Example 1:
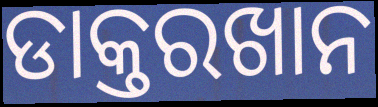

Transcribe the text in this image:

ଡାକ୍ତରଖାନ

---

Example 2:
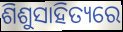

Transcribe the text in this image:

ଶିଶୁସାହିତ୍ୟରେ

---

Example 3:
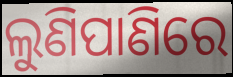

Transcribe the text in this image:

ଲୁଣିପାଣିରେ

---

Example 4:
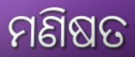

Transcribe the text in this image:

ମଣିଷତ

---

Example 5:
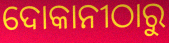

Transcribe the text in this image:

ଦୋକାନୀଠାରୁ